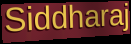
Siddharaj